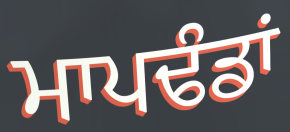
ਮਾਪਢੰਡਾਂ